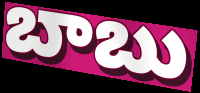
బాబు